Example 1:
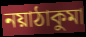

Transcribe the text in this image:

নয়াঠাকুমা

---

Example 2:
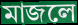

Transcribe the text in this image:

মাজলে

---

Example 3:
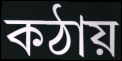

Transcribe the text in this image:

কঠায়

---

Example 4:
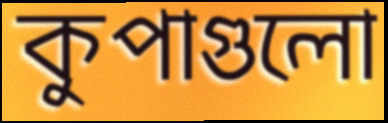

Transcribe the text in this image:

কুপাগুলো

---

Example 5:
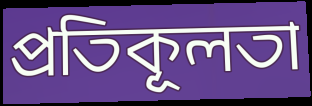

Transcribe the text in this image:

প্রতিকূলতা